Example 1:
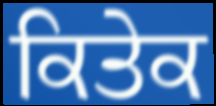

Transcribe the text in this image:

ਕਿਤੇਕ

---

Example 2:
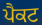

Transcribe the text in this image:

ਪੈਕਟ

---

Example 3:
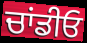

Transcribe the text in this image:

ਚਾਂਡੀਓ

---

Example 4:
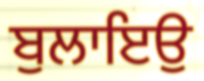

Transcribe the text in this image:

ਬੁਲਾਇਉ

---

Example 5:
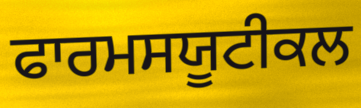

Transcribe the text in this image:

ਫਾਰਮਸਯੂਟੀਕਲ